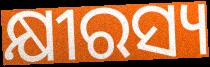
କ୍ଷୀରସ୍ୟ